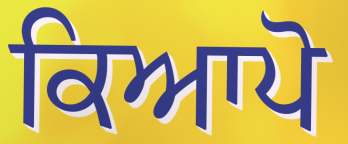
ਕਿਆਪੋ